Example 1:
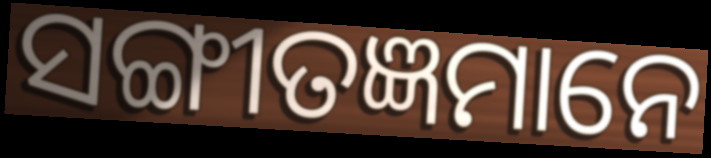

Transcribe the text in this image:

ସଙ୍ଗୀତଜ୍ଞମାନେ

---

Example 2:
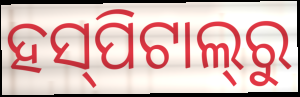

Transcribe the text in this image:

ହସ୍‌ପିଟାଲ୍‌ରୁ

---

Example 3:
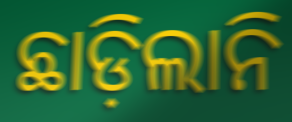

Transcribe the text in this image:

ଛାଡ଼ିଲାନି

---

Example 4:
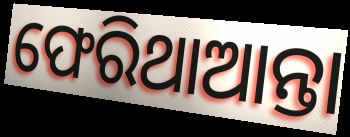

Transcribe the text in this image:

ଫେରିଥାଆନ୍ତା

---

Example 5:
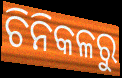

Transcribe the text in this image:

ଚିନିକଳରୁ